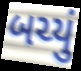
બચ્યું